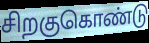
சிறகுகொண்டு